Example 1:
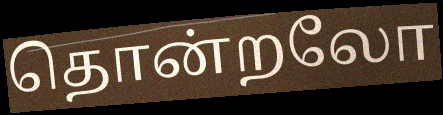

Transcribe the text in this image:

தொன்றலோ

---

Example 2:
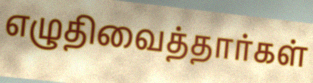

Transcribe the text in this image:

எழுதிவைத்தார்கள்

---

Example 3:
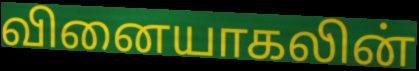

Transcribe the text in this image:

வினையாகலின்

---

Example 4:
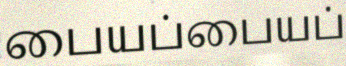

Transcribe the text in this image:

பையப்பையப்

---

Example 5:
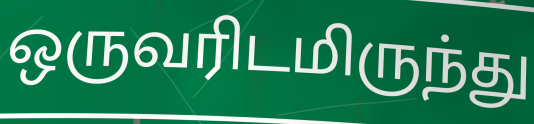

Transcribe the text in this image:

ஒருவரிடமிருந்து